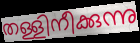
തള്ളിനീക്കുന്നു